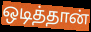
ஒடித்தான்